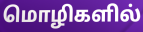
மொழிகளில்